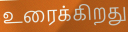
உரைக்கிறது